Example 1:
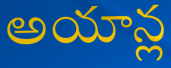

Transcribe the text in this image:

అయాన్ల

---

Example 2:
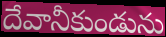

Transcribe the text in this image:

దేవానీకుండును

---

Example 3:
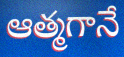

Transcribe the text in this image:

ఆత్మగానే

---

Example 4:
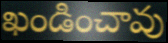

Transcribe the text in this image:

ఖండించావు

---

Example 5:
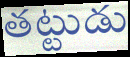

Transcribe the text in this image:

తట్టుడు